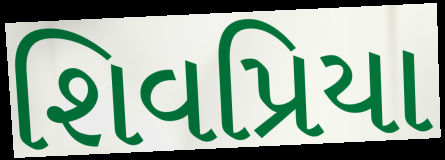
શિવપ્રિયા